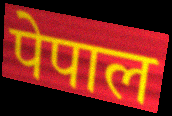
पेपाल